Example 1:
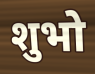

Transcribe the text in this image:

शुभो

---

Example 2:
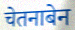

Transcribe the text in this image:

चेतनाबेन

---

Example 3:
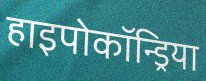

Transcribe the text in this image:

हाइपोकॉन्ड्रिया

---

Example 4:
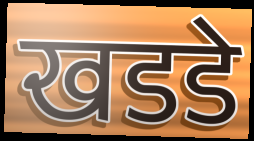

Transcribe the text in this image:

खडडे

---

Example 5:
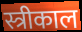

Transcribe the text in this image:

स्त्रीकाल